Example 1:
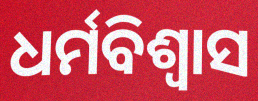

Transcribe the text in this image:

ଧର୍ମବିଶ୍ଵାସ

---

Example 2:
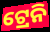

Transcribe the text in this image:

ଟ୍ରେନି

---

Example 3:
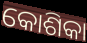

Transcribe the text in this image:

କୋଶିକା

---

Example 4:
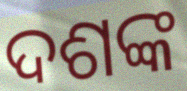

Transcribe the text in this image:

ଦଶଙ୍କ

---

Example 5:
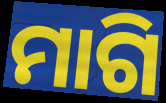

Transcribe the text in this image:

ମାଗି